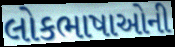
લોકભાષાઓની